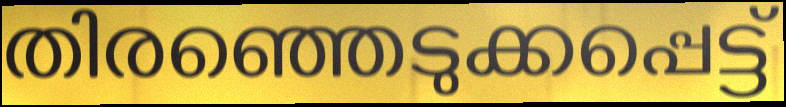
തിരഞ്ഞെടുക്കപ്പെട്ട്